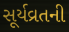
સૂર્યવ્રતની